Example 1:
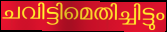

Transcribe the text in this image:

ചവിട്ടിമെതിച്ചിട്ടും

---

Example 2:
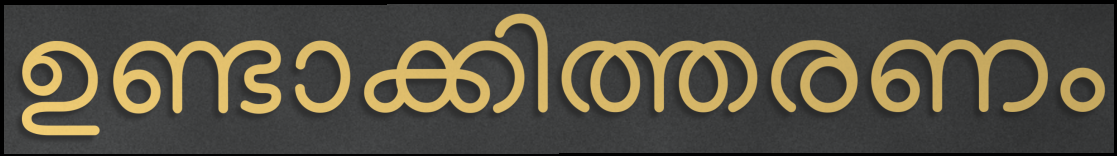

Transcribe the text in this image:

ഉണ്ടാക്കിത്തരണം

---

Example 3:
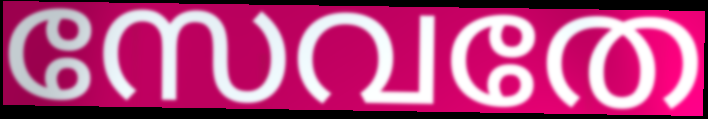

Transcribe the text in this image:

സേവതേ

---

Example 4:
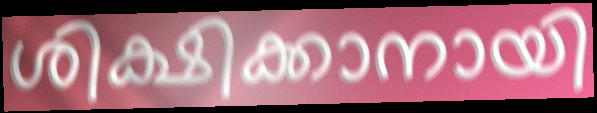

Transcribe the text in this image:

ശിക്ഷിക്കാനായി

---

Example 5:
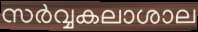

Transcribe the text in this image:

സർവ്വകലാശാല